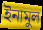
ইনামুল